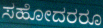
ಸಹೋದರರೂ